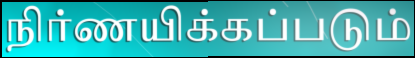
நிர்ணயிக்கப்படும்